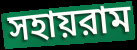
সহায়রাম